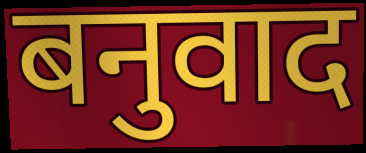
बनुवाद